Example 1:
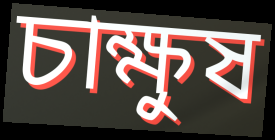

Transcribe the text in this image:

চাক্ষুষ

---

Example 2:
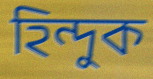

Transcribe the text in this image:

হিন্দুক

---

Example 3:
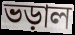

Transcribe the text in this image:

ভড়াল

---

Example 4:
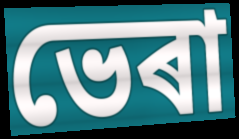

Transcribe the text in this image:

ভেৰা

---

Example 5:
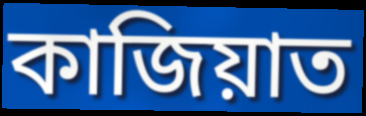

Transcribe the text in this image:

কাজিয়াত